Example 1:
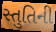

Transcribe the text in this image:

સ્તુતિની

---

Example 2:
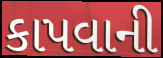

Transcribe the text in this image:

કાપવાની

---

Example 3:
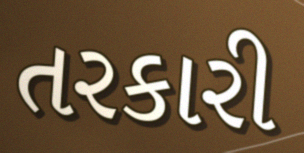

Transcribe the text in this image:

તરકારી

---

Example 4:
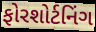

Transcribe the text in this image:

ફોરશોર્ટનિંગ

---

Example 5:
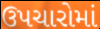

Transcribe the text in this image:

ઉપચારોમાં